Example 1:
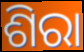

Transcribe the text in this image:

ଶିରା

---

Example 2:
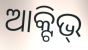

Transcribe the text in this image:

ଆକ୍ଟିଭ୍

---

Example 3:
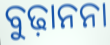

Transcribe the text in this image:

ବୁଢ଼ାନନା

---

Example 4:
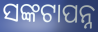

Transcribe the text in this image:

ସଙ୍କଟାପନ୍ନ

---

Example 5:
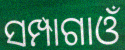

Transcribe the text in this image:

ସମ୍ପାଗାଓଁ